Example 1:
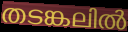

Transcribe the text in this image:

തടങ്കലിൽ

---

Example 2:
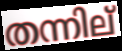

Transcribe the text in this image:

തന്നില്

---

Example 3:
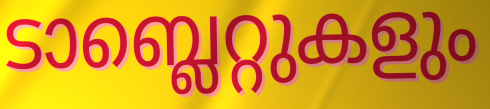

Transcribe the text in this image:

ടാബ്ലെറ്റുകളും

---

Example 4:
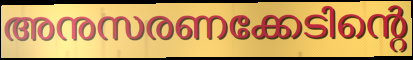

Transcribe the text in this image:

അനുസരണക്കേടിന്റെ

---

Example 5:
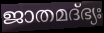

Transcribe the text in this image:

ജാതമദ്ഭ്യഃ